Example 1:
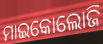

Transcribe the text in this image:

ମାଇକୋଲୋଜି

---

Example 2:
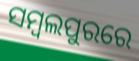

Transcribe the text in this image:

ସମ୍ବଲପୁରରେ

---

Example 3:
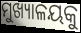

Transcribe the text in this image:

ମୁଖ୍ୟାଳୟକୁ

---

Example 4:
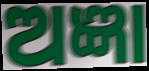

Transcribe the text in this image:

ଅଜ୍ଞା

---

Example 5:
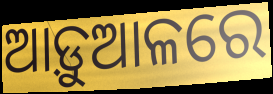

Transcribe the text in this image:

ଆଡ଼ୁଆଳରେ